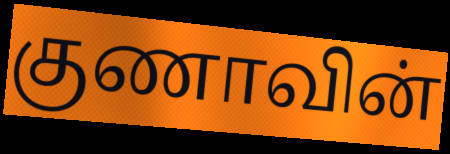
குணாவின்